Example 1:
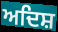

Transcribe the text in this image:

ਅਦਿਸ਼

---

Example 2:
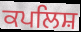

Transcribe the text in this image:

ਕਪਲਿਸ਼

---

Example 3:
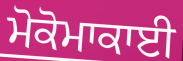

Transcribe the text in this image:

ਮੋਕੋਮਾਕਾਈ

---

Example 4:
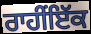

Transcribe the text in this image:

ਰਾਹੀਂਇੱਕ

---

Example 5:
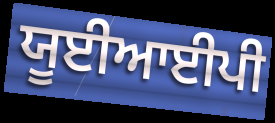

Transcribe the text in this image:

ਯੂਈਆਈਪੀ